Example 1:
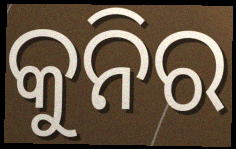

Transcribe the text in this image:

କୁନିର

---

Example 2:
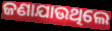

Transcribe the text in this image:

ଜଣାଯାଉଥିଲେ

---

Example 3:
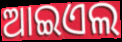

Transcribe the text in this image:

ଆଇଏଲ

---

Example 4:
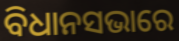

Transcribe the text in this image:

ବିଧାନସଭାରେ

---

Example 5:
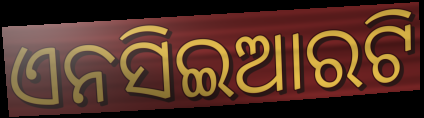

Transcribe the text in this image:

ଏନସିଇଆରଟି